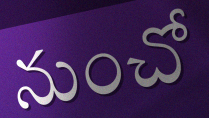
నుంచో